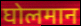
घोलमान